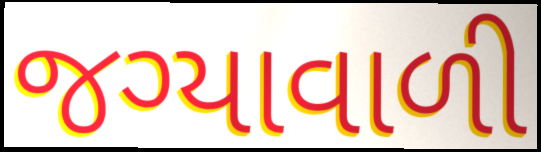
જગ્યાવાળી